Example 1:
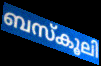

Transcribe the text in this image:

ബസ്കൂലി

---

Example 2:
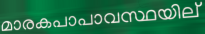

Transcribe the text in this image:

മാരകപാപാവസ്ഥയില്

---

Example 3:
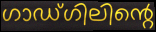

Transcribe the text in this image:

ഗാഡ്ഗിലിന്റെ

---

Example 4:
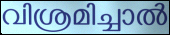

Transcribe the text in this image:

വിശ്രമിച്ചാൽ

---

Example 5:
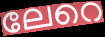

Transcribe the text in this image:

ലേറെ